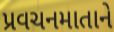
પ્રવચનમાતાને